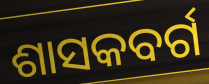
ଶାସକବର୍ଗ